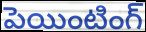
పెయింటింగ్